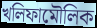
খলিফামৌলিক